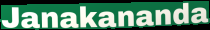
Janakananda